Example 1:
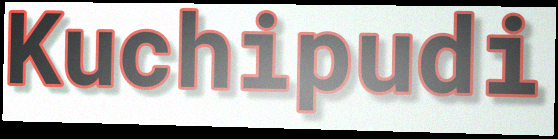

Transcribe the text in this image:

Kuchipudi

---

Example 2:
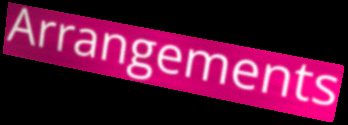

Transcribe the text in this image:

Arrangements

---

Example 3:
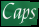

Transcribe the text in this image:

Caps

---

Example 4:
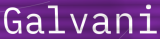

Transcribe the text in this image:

Galvani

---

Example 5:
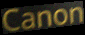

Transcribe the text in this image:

Canon